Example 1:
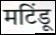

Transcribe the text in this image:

मटिंडू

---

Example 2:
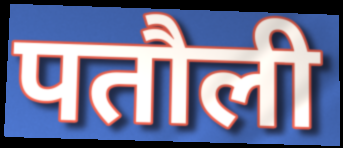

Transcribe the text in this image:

पतौली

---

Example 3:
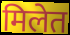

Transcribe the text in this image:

मिलेत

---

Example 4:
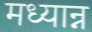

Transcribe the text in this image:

मध्यान्न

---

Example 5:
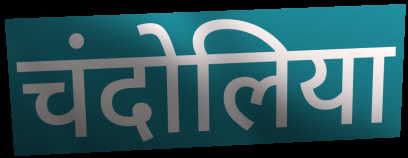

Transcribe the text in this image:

चंदोलिया